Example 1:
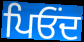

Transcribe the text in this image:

ਪਿਓਂਦ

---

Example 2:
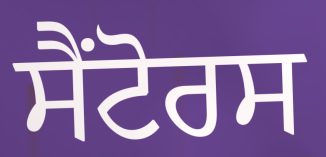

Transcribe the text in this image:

ਸੈਂਟੋਰਸ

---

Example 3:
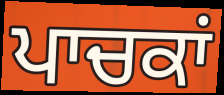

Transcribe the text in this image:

ਪਾਚਕਾਂ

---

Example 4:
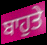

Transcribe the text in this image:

ਬਾਹੁਤੇ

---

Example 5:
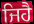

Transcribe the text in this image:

ਜਿਹੈ